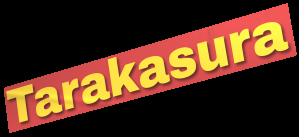
Tarakasura